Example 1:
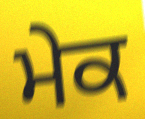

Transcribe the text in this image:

ਮੇਕ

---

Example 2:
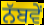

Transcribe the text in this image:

ਨੱਬਵੇਂ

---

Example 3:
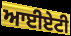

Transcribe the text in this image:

ਆਈਏਟੀ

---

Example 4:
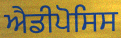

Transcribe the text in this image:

ਐਡੀਪੋਸਿਸ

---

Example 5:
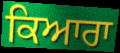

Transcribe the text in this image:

ਕਿਆਰਾ